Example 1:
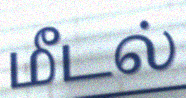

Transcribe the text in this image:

மீடல்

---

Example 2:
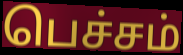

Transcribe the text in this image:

பெச்சம்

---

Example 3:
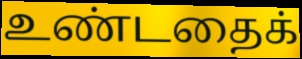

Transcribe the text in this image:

உண்டதைக்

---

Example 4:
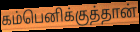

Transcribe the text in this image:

கம்பெனிக்குத்தான்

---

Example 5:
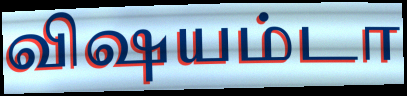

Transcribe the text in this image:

விஷயம்டா